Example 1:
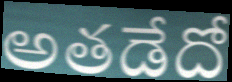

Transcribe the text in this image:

అతడేదో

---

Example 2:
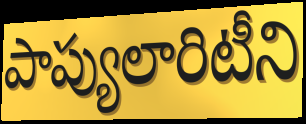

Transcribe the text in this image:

పాప్యులారిటీని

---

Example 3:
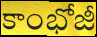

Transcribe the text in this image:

కాంభోజీ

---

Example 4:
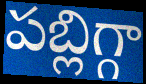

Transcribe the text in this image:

పబ్లిగ్గా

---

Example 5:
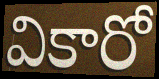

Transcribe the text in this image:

వికారో